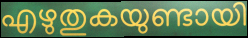
എഴുതുകയുണ്ടായി